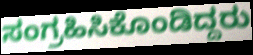
ಸಂಗ್ರಹಿಸಿಕೊಂಡಿದ್ದರು